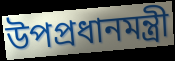
উপপ্রধানমন্ত্রী